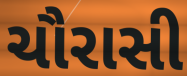
ચૌરાસી